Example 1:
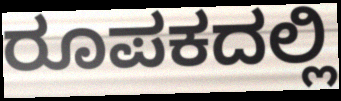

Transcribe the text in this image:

ರೂಪಕದಲ್ಲಿ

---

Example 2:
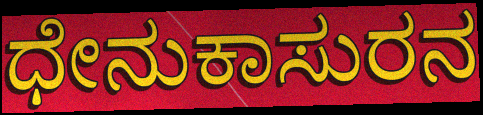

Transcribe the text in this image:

ಧೇನುಕಾಸುರನ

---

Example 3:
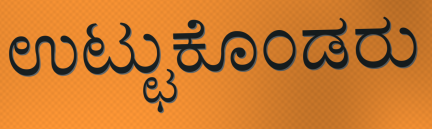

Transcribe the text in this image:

ಉಟ್ಟುಕೊಂಡರು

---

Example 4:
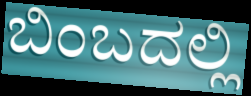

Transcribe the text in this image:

ಬಿಂಬದಲ್ಲಿ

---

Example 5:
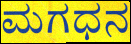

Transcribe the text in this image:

ಮಗಧನ